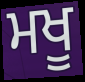
ਮਖੂ